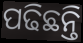
ପଢିଛନ୍ତି